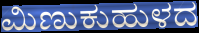
ಮಿಣುಕುಹುಳದ